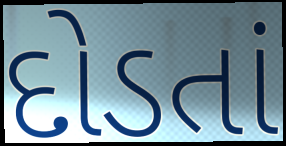
દોડતાં